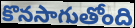
కొనసాగుతోంది